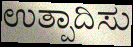
ಉತ್ಪಾದಿಸು